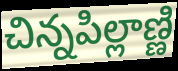
చిన్నపిల్లాణ్ణి